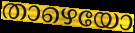
താഴെയോ